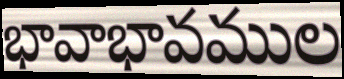
భావాభావముల